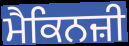
ਮੈਕਿਨਜ਼ੀ